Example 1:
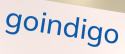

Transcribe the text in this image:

goindigo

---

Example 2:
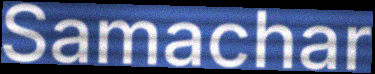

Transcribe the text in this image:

Samachar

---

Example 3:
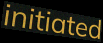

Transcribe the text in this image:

initiated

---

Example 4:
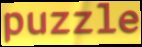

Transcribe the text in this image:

puzzle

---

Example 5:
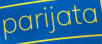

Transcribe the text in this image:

parijata